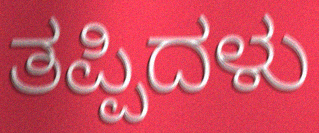
ತಪ್ಪಿದಳು